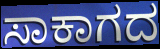
ಸಾಕಾಗದ